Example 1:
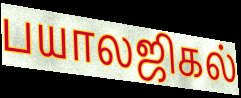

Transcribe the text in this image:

பயாலஜிகல்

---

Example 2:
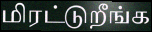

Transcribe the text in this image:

மிரட்டுறீங்க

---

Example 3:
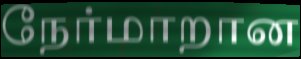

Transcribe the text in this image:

நேர்மாறான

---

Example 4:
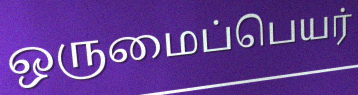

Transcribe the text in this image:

ஒருமைப்பெயர்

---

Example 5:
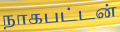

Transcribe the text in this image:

நாகபட்டன்